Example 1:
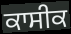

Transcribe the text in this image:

ਕਾਸੀਕ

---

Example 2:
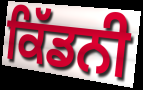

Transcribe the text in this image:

ਕਿੱਡਨੀ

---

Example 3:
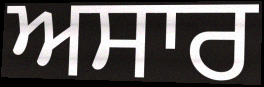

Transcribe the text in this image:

ਅਸਾਰ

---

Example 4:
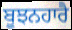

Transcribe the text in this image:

ਬੂਝਨਹਾਰੈ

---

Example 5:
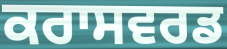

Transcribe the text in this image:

ਕਰਾਸਵਰਡ